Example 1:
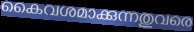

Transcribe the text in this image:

കൈവശമാക്കുന്നതുവരെ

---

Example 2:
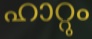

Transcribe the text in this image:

ഹാറ്റും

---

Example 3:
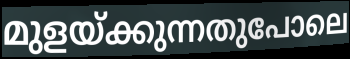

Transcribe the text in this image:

മുളയ്ക്കുന്നതുപോലെ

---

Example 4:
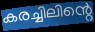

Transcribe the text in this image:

കരച്ചിലിന്റെ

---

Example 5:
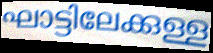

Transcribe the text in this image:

ഘാട്ടിലേക്കുള്ള